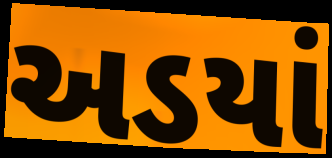
અડયાં